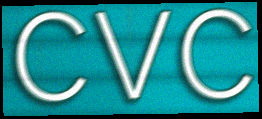
cvc